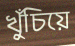
খুঁচিয়ে